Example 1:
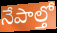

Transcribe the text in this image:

నేపాల్తో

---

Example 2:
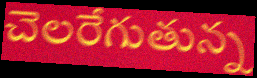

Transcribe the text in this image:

చెలరేగుతున్న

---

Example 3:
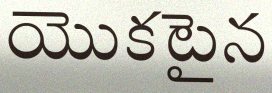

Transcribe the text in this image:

యొకటైన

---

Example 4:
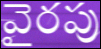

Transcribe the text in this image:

వైరపు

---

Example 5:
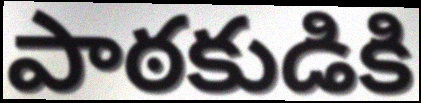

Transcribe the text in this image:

పాఠకుడికి